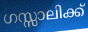
ഗസ്സാലിക്ക്